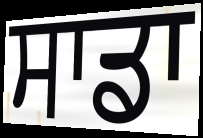
ਸਾਡਾ